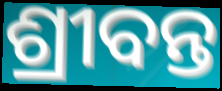
ଶ୍ରୀବନ୍ତ